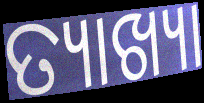
ତ୍ୟାଖ୍ୟା